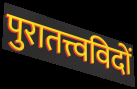
पुरातत्त्वविदों